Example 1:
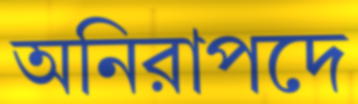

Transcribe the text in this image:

অনিরাপদে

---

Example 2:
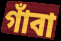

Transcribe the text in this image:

গাঁবা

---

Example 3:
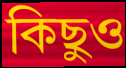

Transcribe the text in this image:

কিছুও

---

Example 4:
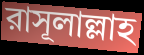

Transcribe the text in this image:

রাসূলাল্লাহ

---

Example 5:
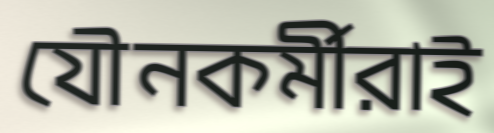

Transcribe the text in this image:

যৌনকর্মীরাই